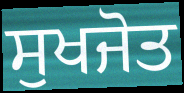
ਸੁਖਜੋਤ